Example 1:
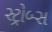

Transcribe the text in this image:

સ્ટ્રોબ્સ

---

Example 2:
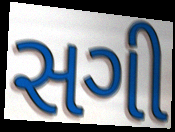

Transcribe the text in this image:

સગી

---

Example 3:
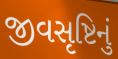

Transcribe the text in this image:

જીવસૃષ્ટિનું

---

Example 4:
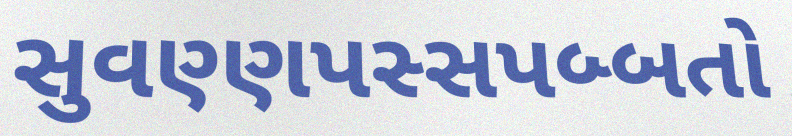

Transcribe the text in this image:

સુવણ્ણપસ્સપબ્બતો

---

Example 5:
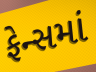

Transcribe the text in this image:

ફેન્સમાં